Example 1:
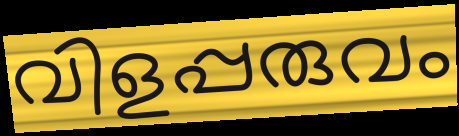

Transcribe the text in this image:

വിളപ്പരുവം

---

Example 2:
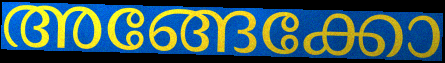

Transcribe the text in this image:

അങ്ങേക്കോ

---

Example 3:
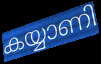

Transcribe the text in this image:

കയ്യാണി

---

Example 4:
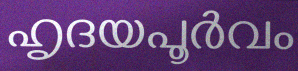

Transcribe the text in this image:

ഹൃദയപൂർവം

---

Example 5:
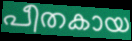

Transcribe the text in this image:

പീതകായ